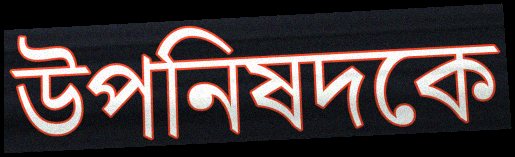
উপনিষদকে